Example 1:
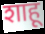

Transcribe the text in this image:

शाहू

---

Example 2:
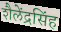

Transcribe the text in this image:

शैलेंद्रसिंह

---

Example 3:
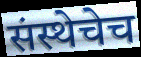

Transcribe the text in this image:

संस्थेचेच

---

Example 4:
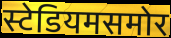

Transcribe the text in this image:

स्टेडियमसमोर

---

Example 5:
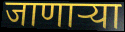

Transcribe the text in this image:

जाणाऱ्या